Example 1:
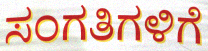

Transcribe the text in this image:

ಸಂಗತಿಗಳಿಗೆ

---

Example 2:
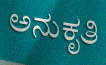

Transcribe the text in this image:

ಅನುಕೃತಿ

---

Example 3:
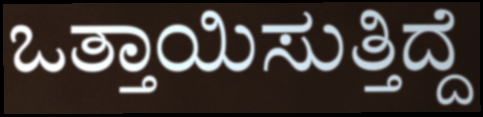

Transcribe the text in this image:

ಒತ್ತಾಯಿಸುತ್ತಿದ್ದೆ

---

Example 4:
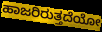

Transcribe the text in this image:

ಹಾಜರಿರುತ್ತದೆಯೋ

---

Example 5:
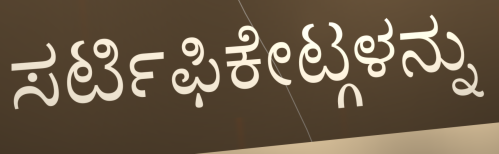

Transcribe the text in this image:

ಸರ್ಟಿಫಿಕೇಟ್ಗಳನ್ನು